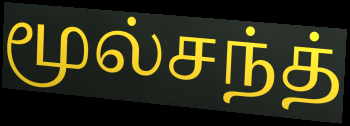
மூல்சந்த்